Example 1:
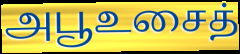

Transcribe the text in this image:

அபூஉசைத்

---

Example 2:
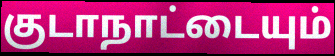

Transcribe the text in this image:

குடாநாட்டையும்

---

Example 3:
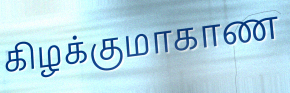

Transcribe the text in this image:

கிழக்குமாகாண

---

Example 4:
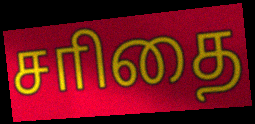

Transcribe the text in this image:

சரிதை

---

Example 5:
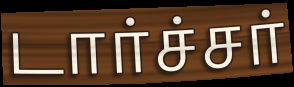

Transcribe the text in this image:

டார்ச்சர்